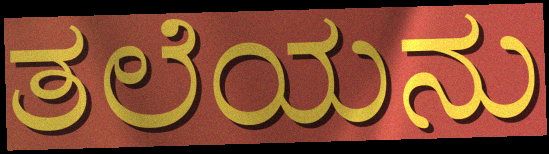
ತಲೆಯನು